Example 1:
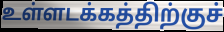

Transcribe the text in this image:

உள்ளடக்கத்திற்குச்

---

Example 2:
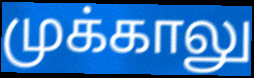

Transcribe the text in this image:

முக்காலு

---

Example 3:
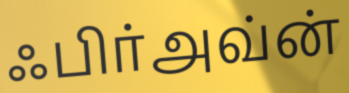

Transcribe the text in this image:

ஃபிர்அவ்ன்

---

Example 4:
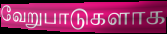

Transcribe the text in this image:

வேறுபாடுகளாக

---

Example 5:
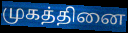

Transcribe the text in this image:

முகத்தினை